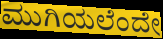
ಮುಗಿಯಲೆಂದೇ